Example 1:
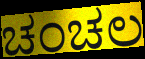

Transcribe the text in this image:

ಚಂಚಲ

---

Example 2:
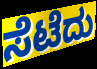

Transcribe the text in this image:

ಸೆಟೆದು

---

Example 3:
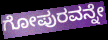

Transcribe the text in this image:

ಗೋಪುರವನ್ನೇ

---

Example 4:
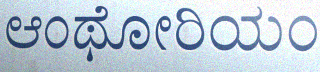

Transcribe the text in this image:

ಆಂಥೋರಿಯಂ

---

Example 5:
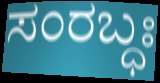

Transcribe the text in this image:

ಸಂರಬ್ಧಃ